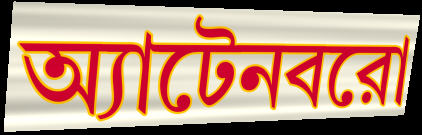
অ্যাটেনবরো